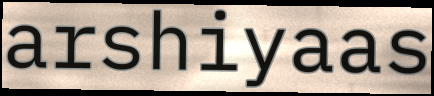
arshiyaas